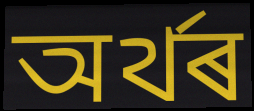
অৰ্থৰ